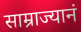
साम्राज्यानं